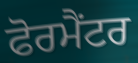
ਫੋਰਮੈਂਟਰ